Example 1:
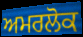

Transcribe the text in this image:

ਅਮਰਲੋਕ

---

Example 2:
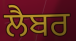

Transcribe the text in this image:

ਲੈਬਰ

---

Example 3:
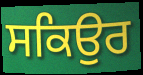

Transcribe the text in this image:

ਸਕਿਉਰ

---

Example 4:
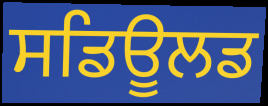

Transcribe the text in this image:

ਸਡਿਊਲਡ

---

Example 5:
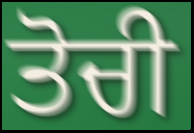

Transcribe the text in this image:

ਤੋਚੀ